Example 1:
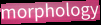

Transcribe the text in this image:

morphology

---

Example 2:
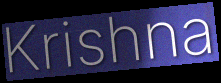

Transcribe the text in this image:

Krishna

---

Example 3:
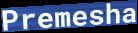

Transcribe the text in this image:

Premesha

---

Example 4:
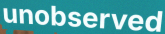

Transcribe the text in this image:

unobserved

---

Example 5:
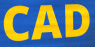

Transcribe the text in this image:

CAD